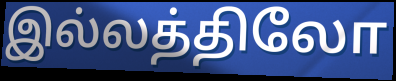
இல்லத்திலோ